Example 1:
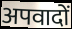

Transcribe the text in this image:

अपवादों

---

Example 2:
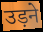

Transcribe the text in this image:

उड़ने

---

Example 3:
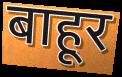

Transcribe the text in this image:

बाहूर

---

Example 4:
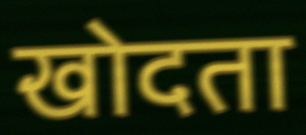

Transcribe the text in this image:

खोदता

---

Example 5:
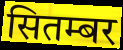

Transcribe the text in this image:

सितम्‍बर